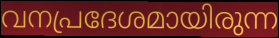
വനപ്രദേശമായിരുന്ന